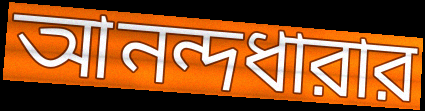
আনন্দধারার